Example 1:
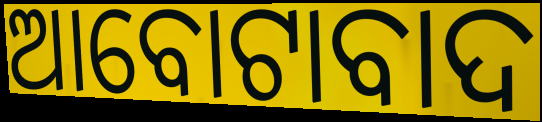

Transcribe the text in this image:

ଆବୋଟାବାଦ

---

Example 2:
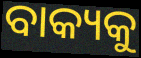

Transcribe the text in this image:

ବାକ୍ୟକୁ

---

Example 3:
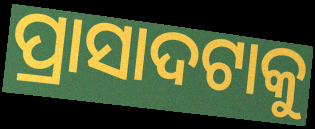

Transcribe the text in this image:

ପ୍ରାସାଦଟାକୁ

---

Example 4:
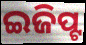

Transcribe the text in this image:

ଇଜିପ୍ଟ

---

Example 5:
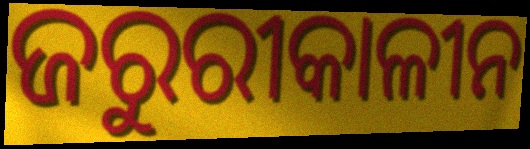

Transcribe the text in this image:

ଜରୁରୀକାଳୀନ